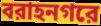
বরাহনগরে